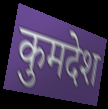
कुमदेश